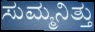
ಸುಮ್ಮನಿತ್ತು